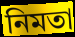
নিমতা